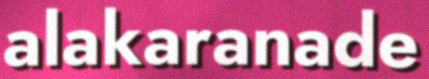
alakaranade